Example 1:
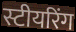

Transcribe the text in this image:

स्टीयरिंग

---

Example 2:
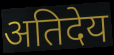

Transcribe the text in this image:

अतिदेय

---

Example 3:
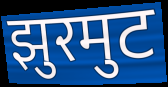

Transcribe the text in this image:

झुरमुट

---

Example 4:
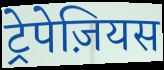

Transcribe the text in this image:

ट्रेपेज़ियस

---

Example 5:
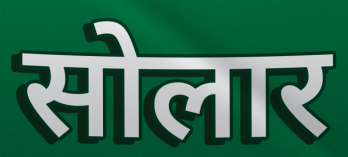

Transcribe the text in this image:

सोलार